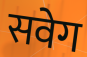
सवेग